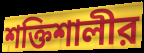
শক্তিশালীর